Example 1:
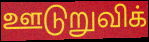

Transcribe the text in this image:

ஊடுறுவிக்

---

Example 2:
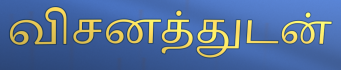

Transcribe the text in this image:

விசனத்துடன்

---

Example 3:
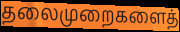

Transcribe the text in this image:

தலைமுறைகளைத்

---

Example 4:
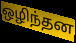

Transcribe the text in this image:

ஒழிந்தன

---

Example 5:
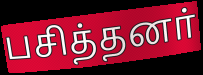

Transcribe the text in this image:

பசித்தனர்